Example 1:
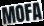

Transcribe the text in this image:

MOFA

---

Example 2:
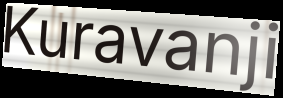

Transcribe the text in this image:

Kuravanji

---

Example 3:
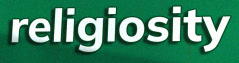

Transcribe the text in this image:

religiosity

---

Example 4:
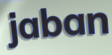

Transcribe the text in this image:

jaban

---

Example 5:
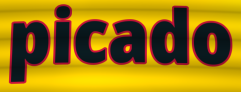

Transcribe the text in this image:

picado